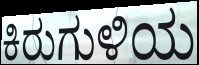
ಕಿರುಗುಳಿಯ